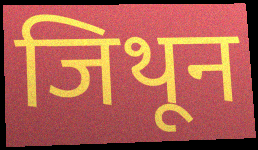
जिथून